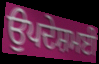
ਉਪਦੇਸ਼ਮਈ